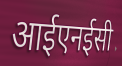
आईएनईसी